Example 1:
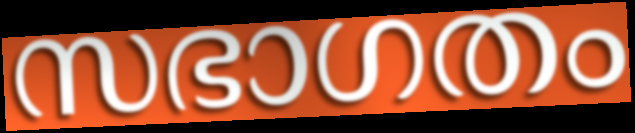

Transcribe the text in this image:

സഭാഗതം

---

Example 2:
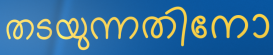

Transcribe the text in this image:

തടയുന്നതിനോ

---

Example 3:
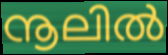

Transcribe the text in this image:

നൂലിൽ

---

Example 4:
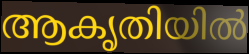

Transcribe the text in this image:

ആകൃതിയിൽ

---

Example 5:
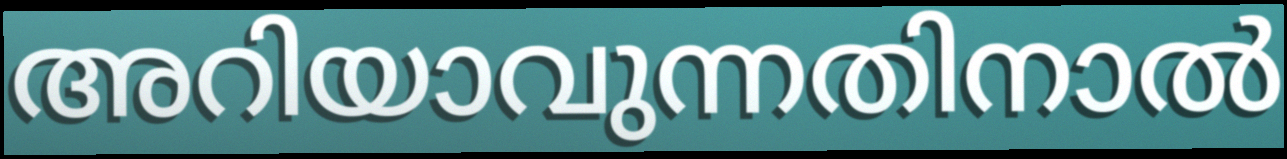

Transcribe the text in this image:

അറിയാവുന്നതിനാൽ